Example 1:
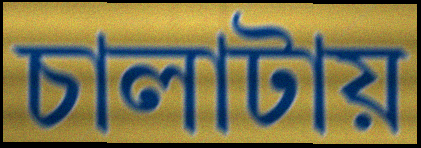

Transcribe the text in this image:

চালাটায়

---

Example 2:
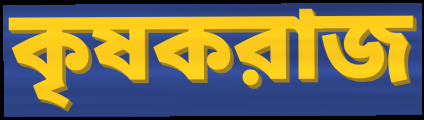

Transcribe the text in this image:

কৃষকরাজ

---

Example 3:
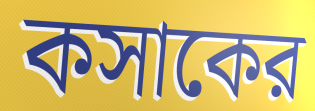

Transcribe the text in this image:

কসাকের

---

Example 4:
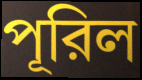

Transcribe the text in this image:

পূরিল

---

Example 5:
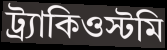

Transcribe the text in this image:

ট্র্যাকিওস্টমি